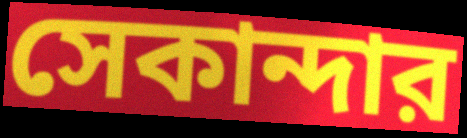
সেকান্দার